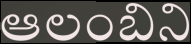
ఆలంబిని